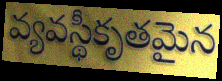
వ్యవస్థీకృతమైన